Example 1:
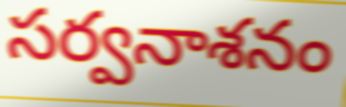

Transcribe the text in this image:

సర్వనాశనం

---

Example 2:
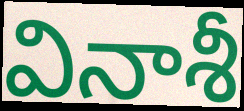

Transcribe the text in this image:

వినాశీ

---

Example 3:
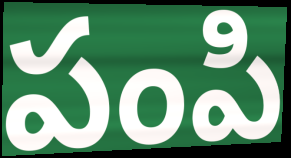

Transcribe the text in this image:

పంపి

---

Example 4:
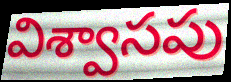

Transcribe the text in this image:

విశ్వాసపు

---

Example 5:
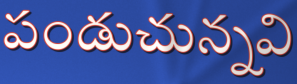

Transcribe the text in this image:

పండుచున్నవి